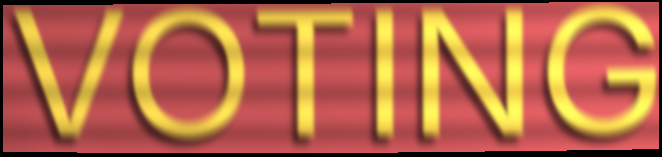
VOTING